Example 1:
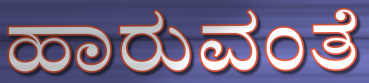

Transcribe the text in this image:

ಹಾರುವಂತೆ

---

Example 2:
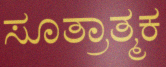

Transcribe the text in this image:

ಸೂತ್ರಾತ್ಮಕ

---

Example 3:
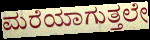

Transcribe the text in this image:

ಮರೆಯಾಗುತ್ತಲೇ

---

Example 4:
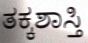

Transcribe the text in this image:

ತಕ್ಕಶಾಸ್ತಿ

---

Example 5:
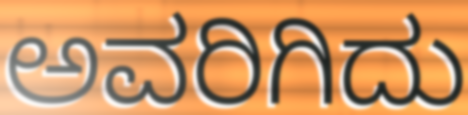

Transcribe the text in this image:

ಅವರಿಗಿದು